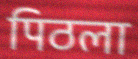
पिठला